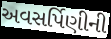
અવસર્પિણીની